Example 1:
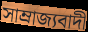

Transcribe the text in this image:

সাম্রাজ্যবাদী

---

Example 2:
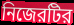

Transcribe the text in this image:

নিজেরটির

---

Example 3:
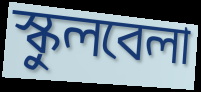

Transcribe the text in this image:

স্কুলবেলা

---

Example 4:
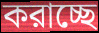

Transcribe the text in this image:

করাচ্ছে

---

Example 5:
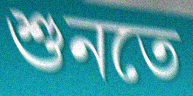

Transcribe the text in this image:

শুনতে